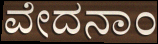
ವೇದನಾಂ